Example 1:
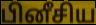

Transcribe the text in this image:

பினீசிய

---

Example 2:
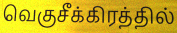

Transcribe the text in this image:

வெகுசீக்கிரத்தில்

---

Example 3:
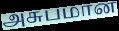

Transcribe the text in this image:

அசுபமான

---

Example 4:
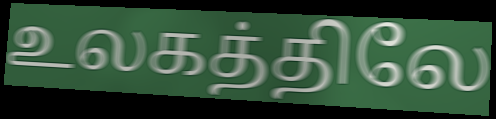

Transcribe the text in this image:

உலகத்திலே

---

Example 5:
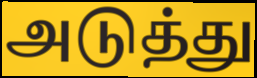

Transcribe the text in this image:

அடுத்து